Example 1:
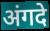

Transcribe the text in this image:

अंगदे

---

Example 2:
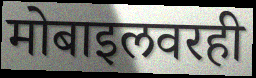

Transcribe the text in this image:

मोबाइलवरही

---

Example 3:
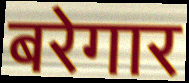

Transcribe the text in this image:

बरेगार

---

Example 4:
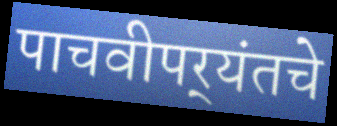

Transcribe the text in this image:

पाचवीपर्यंतचे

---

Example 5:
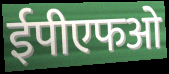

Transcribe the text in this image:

ईपीएफओ